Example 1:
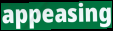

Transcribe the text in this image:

appeasing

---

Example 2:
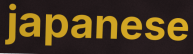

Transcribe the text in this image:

japanese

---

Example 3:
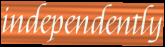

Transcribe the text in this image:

independently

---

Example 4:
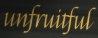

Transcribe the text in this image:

unfruitful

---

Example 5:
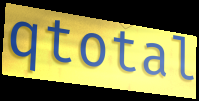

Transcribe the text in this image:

qtotal